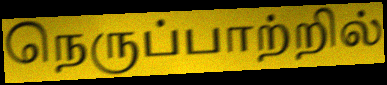
நெருப்பாற்றில்